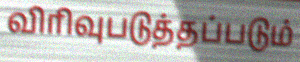
விரிவுபடுத்தப்படும்